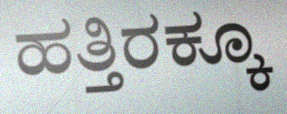
ಹತ್ತಿರಕ್ಕೂ